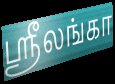
ஶ்ரீலங்கா